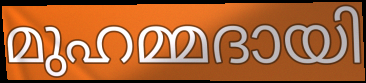
മുഹമ്മദായി